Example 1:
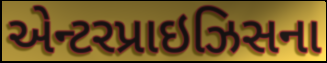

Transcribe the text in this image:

એન્ટરપ્રાઇઝિસના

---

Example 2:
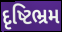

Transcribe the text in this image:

દૃષ્ટિભ્રમ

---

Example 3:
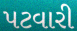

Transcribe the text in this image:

પટવારી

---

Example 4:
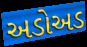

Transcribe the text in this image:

અડોઅડ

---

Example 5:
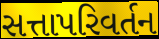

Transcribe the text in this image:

સત્તાપરિવર્તન